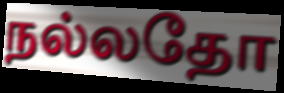
நல்லதோ